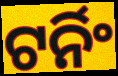
ଟର୍ନିଂ